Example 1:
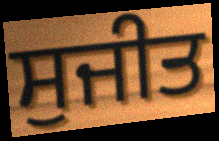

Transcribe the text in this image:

ਸੁਜੀਤ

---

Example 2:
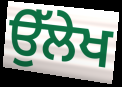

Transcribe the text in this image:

ਉੱਲੇਖ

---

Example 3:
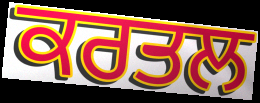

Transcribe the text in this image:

ਕਰਤਲ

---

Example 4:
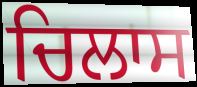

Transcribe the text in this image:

ਚਿਲਾਸ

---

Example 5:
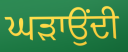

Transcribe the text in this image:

ਘੜਾਉਂਦੀ